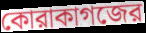
কোরাকাগজের